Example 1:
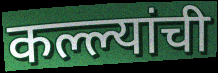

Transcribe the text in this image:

कल्ल्यांची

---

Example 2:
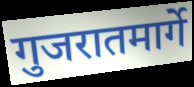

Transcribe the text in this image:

गुजरातमार्गे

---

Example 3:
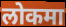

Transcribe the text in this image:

लोकमा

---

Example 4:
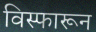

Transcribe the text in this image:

विस्फारून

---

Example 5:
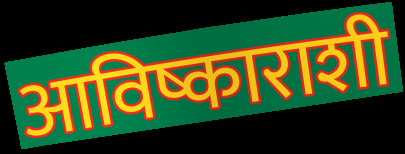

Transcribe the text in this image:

आविष्काराशी